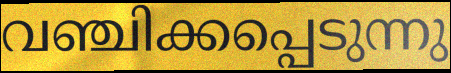
വഞ്ചിക്കപ്പെടുന്നു